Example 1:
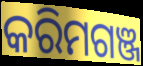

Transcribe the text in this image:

କରିମଗଞ୍ଜ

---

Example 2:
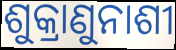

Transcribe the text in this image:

ଶୁକ୍ରାଣୁନାଶୀ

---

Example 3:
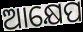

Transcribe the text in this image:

ଆକ୍ଷେପ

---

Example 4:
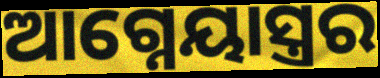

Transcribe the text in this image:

ଆଗ୍ନେୟାସ୍ତ୍ରର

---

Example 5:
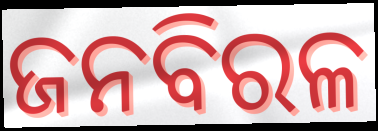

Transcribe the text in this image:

ଜନବିରଳ